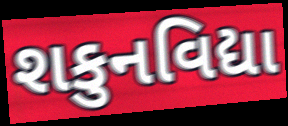
શકુનવિદ્યા